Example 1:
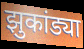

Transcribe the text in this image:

झुकांड्या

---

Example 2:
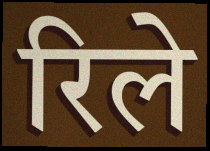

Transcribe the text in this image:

रिले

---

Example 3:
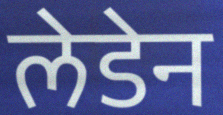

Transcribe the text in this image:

लेडेन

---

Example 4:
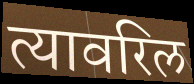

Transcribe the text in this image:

त्यावरिल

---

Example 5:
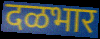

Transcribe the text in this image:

दळभार